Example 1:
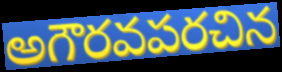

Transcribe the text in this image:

అగౌరవపరచిన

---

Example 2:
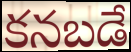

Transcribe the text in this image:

కనబడే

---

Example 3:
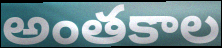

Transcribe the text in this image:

అంతకాల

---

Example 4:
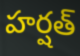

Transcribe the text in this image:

హర్షత్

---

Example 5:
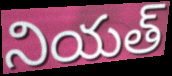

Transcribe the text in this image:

నియత్